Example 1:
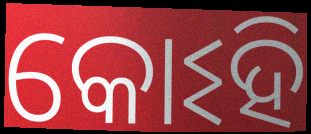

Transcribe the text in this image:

କୋଽହି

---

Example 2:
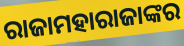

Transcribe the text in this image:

ରାଜାମହାରାଜାଙ୍କର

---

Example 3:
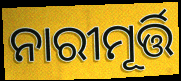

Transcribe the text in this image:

ନାରୀମୂର୍ତ୍ତି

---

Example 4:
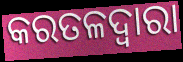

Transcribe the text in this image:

କରତଳଦ୍ୱାରା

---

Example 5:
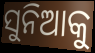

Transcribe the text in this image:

ସୁନିଆକୁ